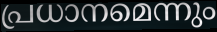
പ്രധാനമെന്നും